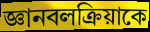
জ্ঞানবলক্রিয়াকে